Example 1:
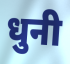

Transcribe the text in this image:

धुनी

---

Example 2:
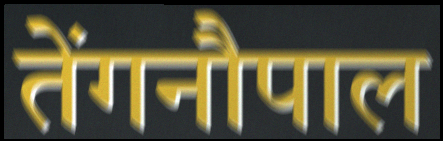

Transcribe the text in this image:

तेंगनौपाल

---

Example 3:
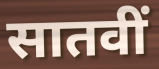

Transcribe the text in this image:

सातवीं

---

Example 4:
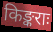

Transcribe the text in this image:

किङ्कराः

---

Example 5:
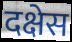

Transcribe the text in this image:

दक्षेस